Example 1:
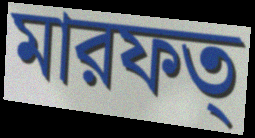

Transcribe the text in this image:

মারফত্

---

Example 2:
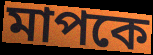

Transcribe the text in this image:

মাপকে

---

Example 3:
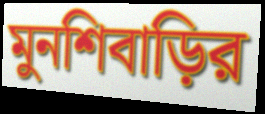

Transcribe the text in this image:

মুনশিবাড়ির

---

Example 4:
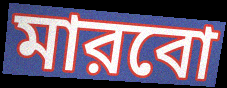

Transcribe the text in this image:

মারবো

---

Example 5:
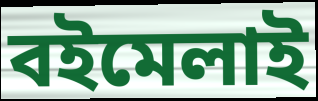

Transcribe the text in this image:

বইমেলাই